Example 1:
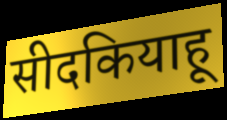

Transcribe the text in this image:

सीदकियाहू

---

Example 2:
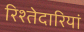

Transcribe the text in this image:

रिश्तेदारियां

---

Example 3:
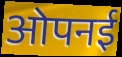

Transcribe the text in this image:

ओपनई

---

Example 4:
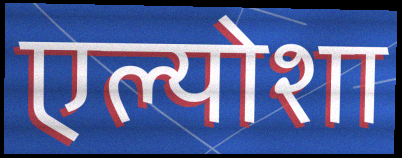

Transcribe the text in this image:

एल्योशा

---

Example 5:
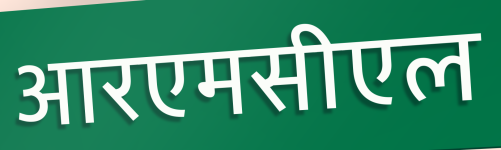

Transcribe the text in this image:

आरएमसीएल